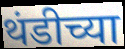
थंडीच्या